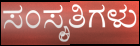
ಸಂಸ್ಕೃತಿಗಳು